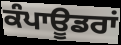
ਕੰਪਾਊਡਰਾਂ